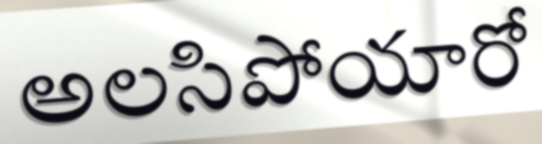
అలసిపోయారో